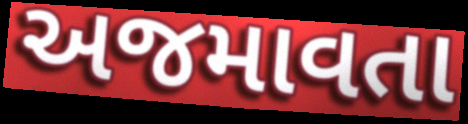
અજમાવતા